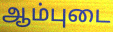
ஆம்புடை